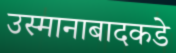
उस्मानाबादकडे